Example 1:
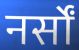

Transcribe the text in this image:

नर्सों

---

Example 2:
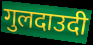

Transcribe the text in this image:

गुलदाउदी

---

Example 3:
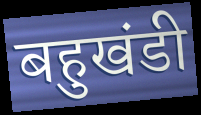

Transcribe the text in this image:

बहुखंडी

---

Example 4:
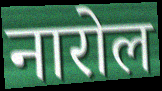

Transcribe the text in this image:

नारोल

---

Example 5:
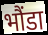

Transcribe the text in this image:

भौंडा